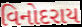
વિનોદરાય